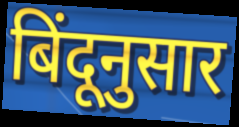
बिंदूनुसार